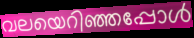
വലയെറിഞ്ഞപ്പോൾ